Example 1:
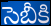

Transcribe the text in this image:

సెబీకి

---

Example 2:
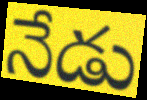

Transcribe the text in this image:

నేడు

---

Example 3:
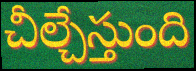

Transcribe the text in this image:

చీల్చేస్తుంది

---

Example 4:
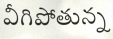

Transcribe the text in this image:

వీగిపోతున్న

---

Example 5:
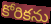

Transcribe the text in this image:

కోరికను